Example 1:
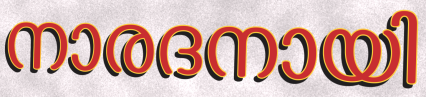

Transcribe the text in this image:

നാരദനായി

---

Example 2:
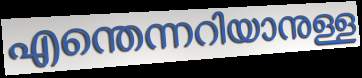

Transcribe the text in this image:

എന്തെന്നറിയാനുള്ള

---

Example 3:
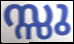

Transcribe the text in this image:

സ്സു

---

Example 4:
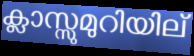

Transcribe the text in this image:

ക്ലാസ്സുമുറിയില്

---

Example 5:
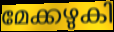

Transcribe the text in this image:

മേക്കഴുകി